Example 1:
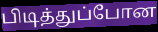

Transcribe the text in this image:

பிடித்துப்போன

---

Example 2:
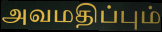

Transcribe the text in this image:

அவமதிப்பும்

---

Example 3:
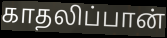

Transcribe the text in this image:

காதலிப்பான்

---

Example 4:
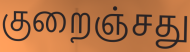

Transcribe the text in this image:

குறைஞ்சது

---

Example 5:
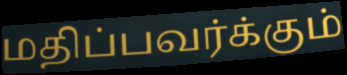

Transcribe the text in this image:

மதிப்பவர்க்கும்